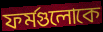
ফর্মগুলোকে